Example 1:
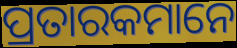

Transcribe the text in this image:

ପ୍ରତାରକମାନେ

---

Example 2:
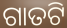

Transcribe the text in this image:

ଗାତଟି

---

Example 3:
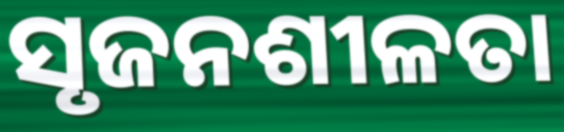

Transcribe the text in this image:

ସୃଜନଶୀଳତା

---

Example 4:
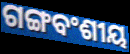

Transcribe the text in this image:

ଗଙ୍ଗବଂଶୀୟ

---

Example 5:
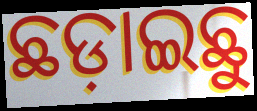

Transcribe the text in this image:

ଛଡ଼ାଇଛୁ